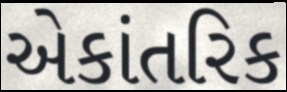
એકાંતરિક